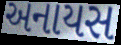
અનાયસ